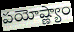
పయోష్ణ్యాం